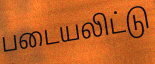
படையலிட்டு